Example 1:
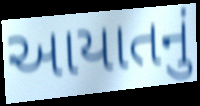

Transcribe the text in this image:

આયાતનું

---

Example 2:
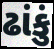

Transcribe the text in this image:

ઢાંકું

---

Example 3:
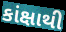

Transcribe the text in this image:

કાંક્ષાથી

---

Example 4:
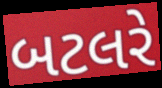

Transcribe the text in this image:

બટલરે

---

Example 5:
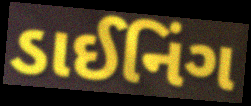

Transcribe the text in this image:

ડાઈનિંગ